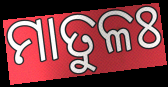
ମାତୁଳଃ